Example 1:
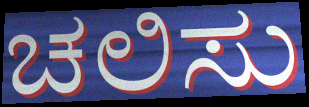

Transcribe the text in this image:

ಚಲಿಸು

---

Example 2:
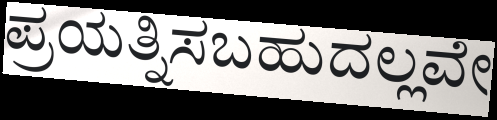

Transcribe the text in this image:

ಪ್ರಯತ್ನಿಸಬಹುದಲ್ಲವೇ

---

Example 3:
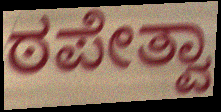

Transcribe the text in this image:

ಠಪೇತ್ವಾ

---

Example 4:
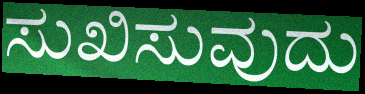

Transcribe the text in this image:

ಸುಖಿಸುವುದು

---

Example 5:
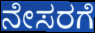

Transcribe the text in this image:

ನೇಸರಗೆ